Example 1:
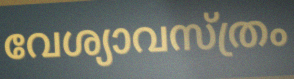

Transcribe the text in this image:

വേശ്യാവസ്ത്രം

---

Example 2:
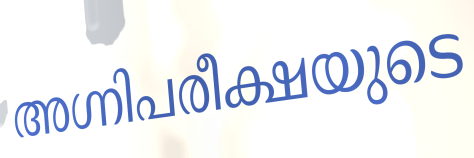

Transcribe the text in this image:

അഗ്നിപരീക്ഷയുടെ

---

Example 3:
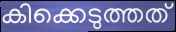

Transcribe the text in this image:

കിക്കെടുത്തത്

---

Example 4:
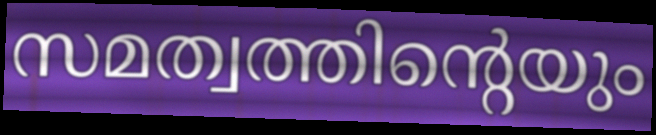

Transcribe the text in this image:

സമത്വത്തിന്റെയും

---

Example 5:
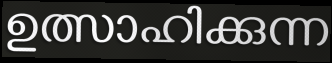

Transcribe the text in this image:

ഉത്സാഹിക്കുന്ന